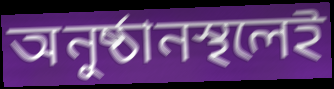
অনুষ্ঠানস্থলেই